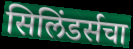
सिलिंडर्सचा